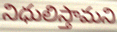
నిధులిస్తామని